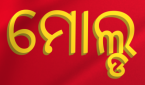
ମୋଲ୍ଡ